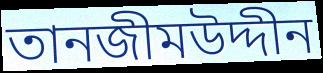
তানজীমউদ্দীন